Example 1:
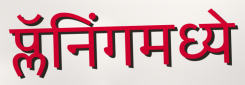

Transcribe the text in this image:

प्लॅनिंगमध्ये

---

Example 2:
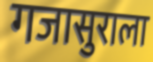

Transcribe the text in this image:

गजासुराला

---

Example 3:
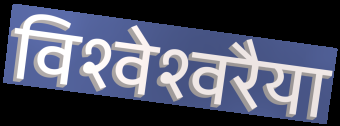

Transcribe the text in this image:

विश्वेश्वरैया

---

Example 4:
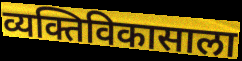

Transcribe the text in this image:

व्यक्तिविकासाला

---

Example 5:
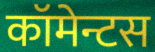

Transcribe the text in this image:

कॉमेन्टस